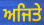
ਅਜਿਤੇ